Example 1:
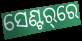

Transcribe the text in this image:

ସେଣ୍ଟର୍‌ରେ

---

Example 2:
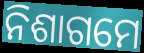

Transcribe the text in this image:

ନିଶାଗମେ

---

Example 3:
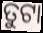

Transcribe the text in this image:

ତୁଟା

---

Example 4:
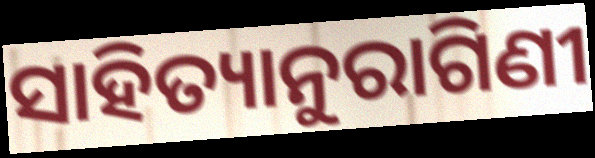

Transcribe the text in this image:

ସାହିତ୍ୟାନୁରାଗିଣୀ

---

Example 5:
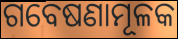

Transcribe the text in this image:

ଗବେଷଣାମୂଳକ